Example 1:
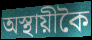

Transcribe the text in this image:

অস্থায়ীকৈ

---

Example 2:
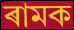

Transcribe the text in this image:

ৰামক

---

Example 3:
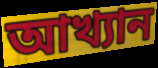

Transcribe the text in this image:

আখ্যান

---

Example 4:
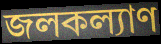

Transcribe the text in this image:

জলকল্যাণ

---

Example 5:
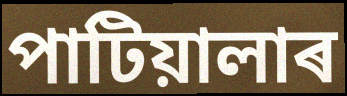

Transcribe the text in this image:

পাটিয়ালাৰ